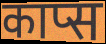
काप्स